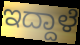
ಇದ್ದಾಳೆ